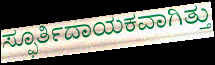
ಸ್ಫೂರ್ತಿದಾಯಕವಾಗಿತ್ತು